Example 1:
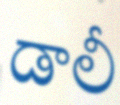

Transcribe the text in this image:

డాలీ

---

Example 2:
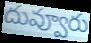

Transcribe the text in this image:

దువ్వూరు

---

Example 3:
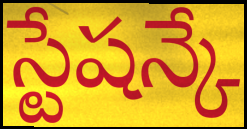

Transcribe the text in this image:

స్టేషన్కే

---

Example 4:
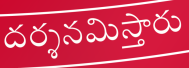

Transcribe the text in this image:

దర్శనమిస్తారు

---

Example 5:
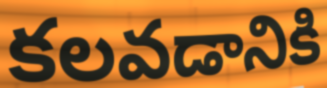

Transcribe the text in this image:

కలవడానికి